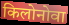
किलोनोवा